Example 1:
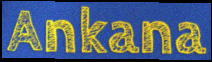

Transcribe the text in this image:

Ankana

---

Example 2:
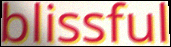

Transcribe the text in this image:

blissful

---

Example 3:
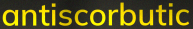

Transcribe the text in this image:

antiscorbutic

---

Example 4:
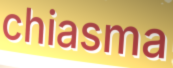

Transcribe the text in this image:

chiasma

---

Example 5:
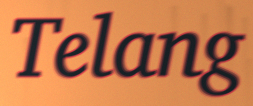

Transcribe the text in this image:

Telang